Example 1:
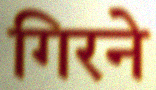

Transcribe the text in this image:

गिरने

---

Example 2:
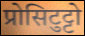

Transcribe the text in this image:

प्रोसिटुट्टो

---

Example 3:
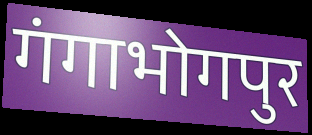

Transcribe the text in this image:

गंगाभोगपुर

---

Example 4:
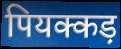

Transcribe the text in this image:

पियक्कड़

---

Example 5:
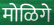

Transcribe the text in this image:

मोळिगे